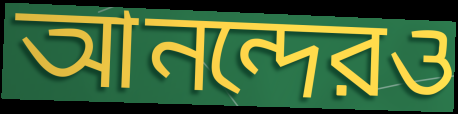
আনন্দেরও